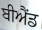
ਬੀਐਂਡ